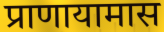
प्राणायामास